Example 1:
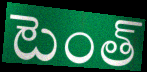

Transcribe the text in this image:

టెంత్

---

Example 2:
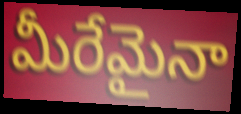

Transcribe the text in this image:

మీరేమైనా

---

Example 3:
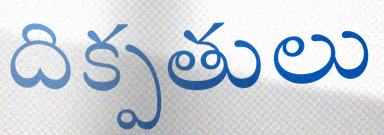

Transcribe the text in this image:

దిక్పతులు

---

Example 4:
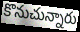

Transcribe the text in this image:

కొనుచున్నారు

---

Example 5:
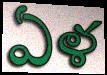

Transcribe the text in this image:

ఏళ